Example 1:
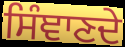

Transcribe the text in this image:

ਸਿੰਞਾਣਦੇ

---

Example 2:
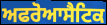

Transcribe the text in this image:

ਅਫਰੋਆਸੈਟਿਕ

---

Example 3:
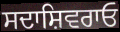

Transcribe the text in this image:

ਸਦਾਸ਼ਿਵਰਾਓ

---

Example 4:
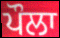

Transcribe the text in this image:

ਪੌਲਾ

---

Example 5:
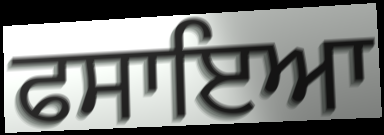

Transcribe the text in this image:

ਫਸਾਇਆ